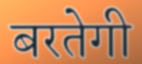
बरतेगी